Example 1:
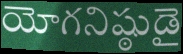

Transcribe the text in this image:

యోగనిష్ఠుడై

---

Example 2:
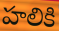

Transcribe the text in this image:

హలికి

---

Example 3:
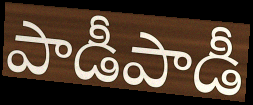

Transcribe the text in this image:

పాడీపాడీ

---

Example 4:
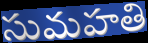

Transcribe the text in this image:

సుమహతి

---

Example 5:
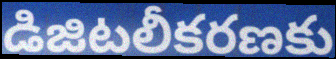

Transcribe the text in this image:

డిజిటలీకరణకు